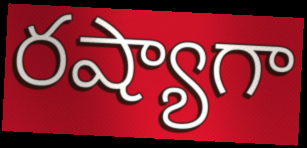
రష్యాగా